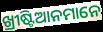
ଖ୍ରୀଷ୍ଟିଆନମାନେ